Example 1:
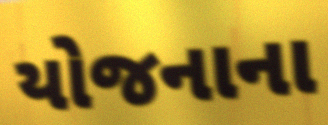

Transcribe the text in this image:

યોજનાના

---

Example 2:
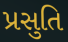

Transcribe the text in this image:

પ્રસુતિ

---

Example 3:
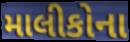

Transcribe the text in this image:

માલીકોના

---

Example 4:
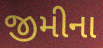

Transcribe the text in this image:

જીમીના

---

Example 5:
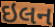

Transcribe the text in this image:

ઇલન